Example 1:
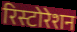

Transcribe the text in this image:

रिस्टोरेशन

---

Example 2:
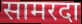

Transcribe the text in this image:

सामरदा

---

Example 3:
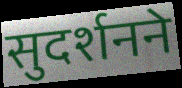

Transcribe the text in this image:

सुदर्शनने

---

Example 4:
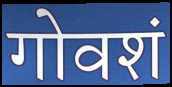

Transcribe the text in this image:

गोवशं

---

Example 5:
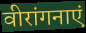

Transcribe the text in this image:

वीरांगनाएं